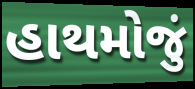
હાથમોજું